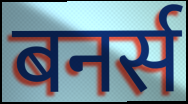
बनर्स